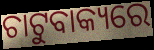
ଚାଟୁବାକ୍ୟରେ